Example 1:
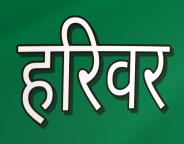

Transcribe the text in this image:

हरिवर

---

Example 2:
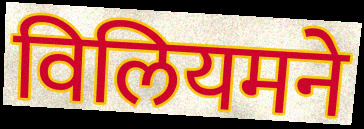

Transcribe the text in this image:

विलियमने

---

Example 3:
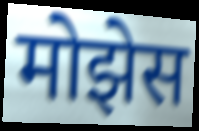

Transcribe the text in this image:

मोझेस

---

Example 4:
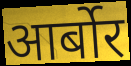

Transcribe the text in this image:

आर्बोर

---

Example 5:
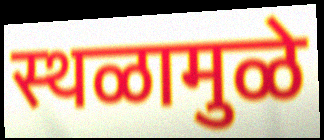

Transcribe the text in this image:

स्थळामुळे